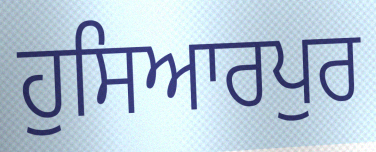
ਹੁਸਿਆਰਪੁਰ